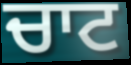
ਚਾਟ